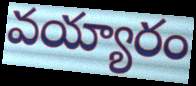
వయ్యారం